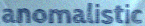
anomalistic